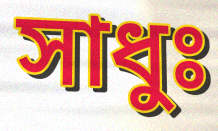
সাধুঃ